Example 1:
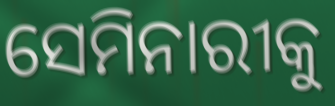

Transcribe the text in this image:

ସେମିନାରୀକୁ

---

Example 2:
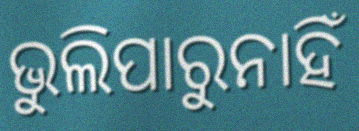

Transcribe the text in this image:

ଭୁଲିପାରୁନାହିଁ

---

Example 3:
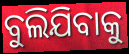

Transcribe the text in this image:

ବୁଲିଯିବାକୁ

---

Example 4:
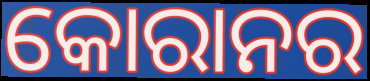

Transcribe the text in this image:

କୋରାନର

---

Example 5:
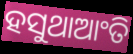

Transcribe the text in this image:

ହସୁଥାଆଂତି